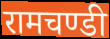
रामचण्डी